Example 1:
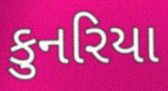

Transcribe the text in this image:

કુનરિયા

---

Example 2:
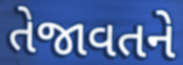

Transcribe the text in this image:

તેજાવતને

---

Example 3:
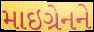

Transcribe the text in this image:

માઇગ્રેનને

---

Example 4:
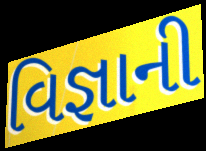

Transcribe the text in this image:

વિજ્ઞાની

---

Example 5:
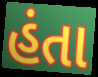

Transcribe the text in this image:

હંતા